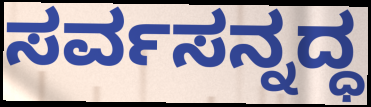
ಸರ್ವಸನ್ನದ್ಧ